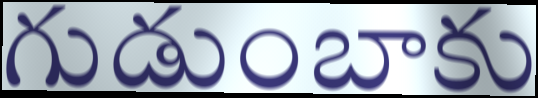
గుడుంబాకు